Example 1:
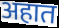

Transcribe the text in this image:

अहात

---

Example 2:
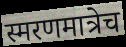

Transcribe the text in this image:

स्मरणमात्रेच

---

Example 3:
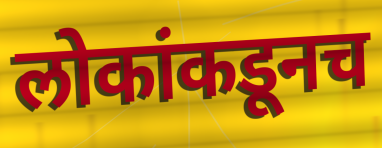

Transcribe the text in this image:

लोकांकडूनच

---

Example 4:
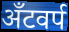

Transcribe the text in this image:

अँटवर्प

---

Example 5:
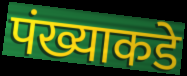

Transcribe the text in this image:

पंख्याकडे